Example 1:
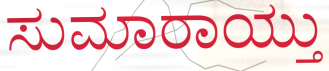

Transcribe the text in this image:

ಸುಮಾರಾಯ್ತು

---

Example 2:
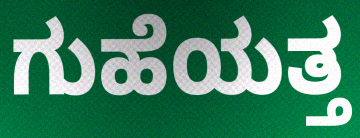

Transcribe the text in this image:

ಗುಹೆಯತ್ತ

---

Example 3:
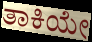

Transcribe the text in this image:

ತಾಕಿಯೇ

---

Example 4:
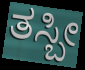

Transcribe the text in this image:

ತಸ್ಬೀ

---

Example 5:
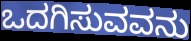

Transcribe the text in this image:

ಒದಗಿಸುವವನು